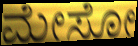
ಮೇಸೋ